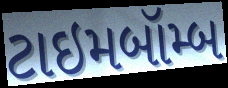
ટાઇમબૉમ્બ